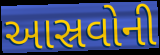
આસ્રવોની